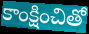
కాంక్షించితో